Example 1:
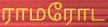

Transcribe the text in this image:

ராமரோட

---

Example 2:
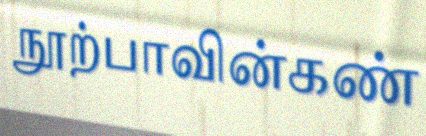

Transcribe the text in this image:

நூற்பாவின்கண்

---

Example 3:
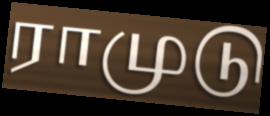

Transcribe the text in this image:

ராமுடு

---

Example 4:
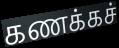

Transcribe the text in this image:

கணக்கச்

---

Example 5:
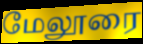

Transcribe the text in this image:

மேலூரை